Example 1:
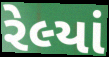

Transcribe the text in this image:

રેલ્યાં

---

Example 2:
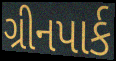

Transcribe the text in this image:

ગ્રીનપાર્ક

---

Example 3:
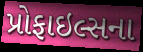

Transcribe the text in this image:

પ્રોફાઇલ્સના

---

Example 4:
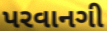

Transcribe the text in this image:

પરવાનગી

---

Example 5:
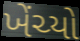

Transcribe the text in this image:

ખેંચ્યો